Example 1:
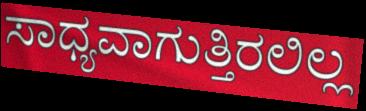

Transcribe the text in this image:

ಸಾಧ್ಯವಾಗುತ್ತಿರಲಿಲ್ಲ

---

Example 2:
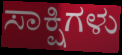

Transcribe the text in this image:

ಸಾಕ್ಷಿಗಳು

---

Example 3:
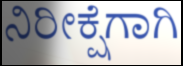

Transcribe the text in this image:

ನಿರೀಕ್ಷೆಗಾಗಿ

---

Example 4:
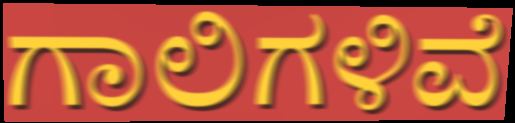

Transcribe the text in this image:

ಗಾಲಿಗಳಿವೆ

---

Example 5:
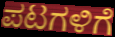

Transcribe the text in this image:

ಪಟಗಳಿಗೆ